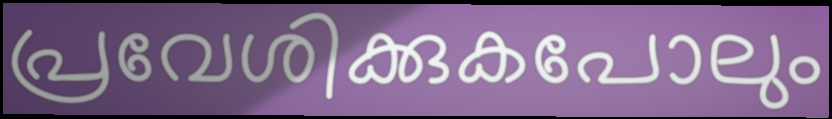
പ്രവേശിക്കുകപോലും